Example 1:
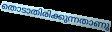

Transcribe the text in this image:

തൊടാതിരിക്കുന്നതാണു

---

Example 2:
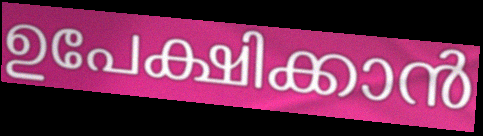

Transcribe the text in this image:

ഉപേക്ഷിക്കാൻ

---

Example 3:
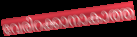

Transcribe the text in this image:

വേരിറക്കാനാകാത്ത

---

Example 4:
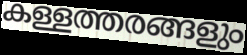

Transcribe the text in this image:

കള്ളത്തരങ്ങളും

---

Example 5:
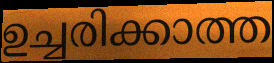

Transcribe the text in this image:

ഉച്ചരിക്കാത്ത